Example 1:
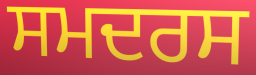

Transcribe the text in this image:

ਸਮਦਰਸ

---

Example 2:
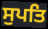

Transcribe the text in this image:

ਸੁਪਤਿ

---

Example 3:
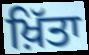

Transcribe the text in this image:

ਖ਼ਿੱਤਾ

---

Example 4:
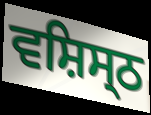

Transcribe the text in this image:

ਵਸ਼ਿਸ੍ਠ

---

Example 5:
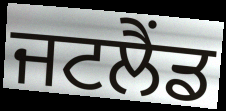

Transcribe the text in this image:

ਜਟਲੈਂਡ